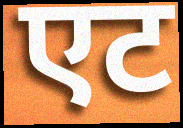
एट